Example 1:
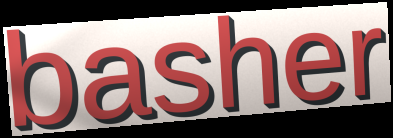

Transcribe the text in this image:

basher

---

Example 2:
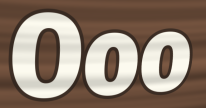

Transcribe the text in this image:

Ooo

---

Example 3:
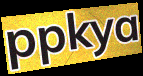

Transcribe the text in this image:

ppkya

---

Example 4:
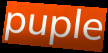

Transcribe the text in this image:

puple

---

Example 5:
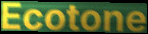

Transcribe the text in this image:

Ecotone